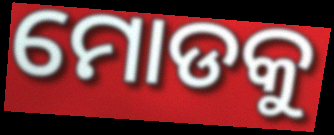
ମୋଡକୁ